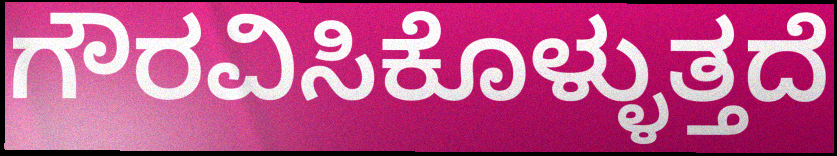
ಗೌರವಿಸಿಕೊಳ್ಳುತ್ತದೆ